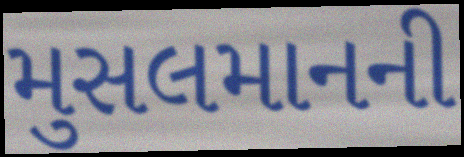
મુસલમાનની